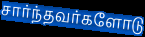
சார்ந்தவர்களோடு